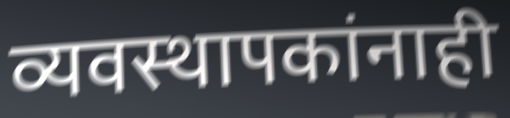
व्यवस्थापकांनाही